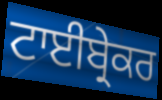
ਟਾਈਬ੍ਰੇਕਰ